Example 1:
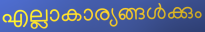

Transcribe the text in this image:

എല്ലാകാര്യങ്ങൾക്കും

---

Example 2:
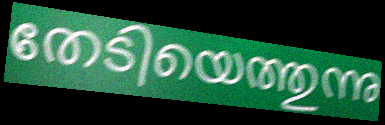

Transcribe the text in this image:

തേടിയെത്തുന്നു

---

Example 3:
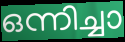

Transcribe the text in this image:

ഒന്നിച്ചാ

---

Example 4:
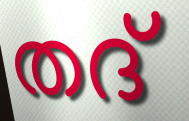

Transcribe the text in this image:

തദ്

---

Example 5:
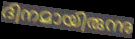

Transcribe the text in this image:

ദിനമായിരുന്നു